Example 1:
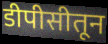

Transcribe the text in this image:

डीपीसीतून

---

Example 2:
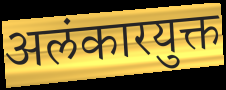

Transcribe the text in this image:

अलंकारयुक्त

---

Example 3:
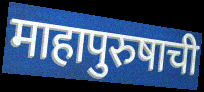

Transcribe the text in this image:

माहापुरुषाची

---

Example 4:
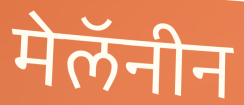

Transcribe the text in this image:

मेलॅनीन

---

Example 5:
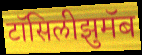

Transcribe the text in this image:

टॉसिलीझुमॅब